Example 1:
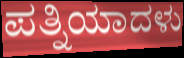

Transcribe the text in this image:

ಪತ್ನಿಯಾದಳು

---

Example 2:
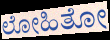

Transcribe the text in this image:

ಲೋಹಿತೋ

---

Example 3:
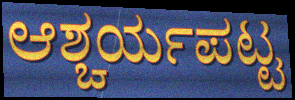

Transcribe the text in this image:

ಆಶ್ಚರ್ಯಪಟ್ಟ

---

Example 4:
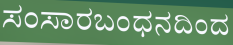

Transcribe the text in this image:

ಸಂಸಾರಬಂಧನದಿಂದ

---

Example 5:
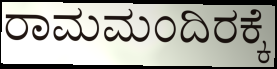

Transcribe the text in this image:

ರಾಮಮಂದಿರಕ್ಕೆ